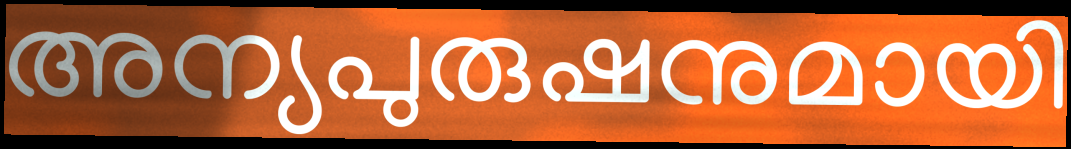
അന്യപുരുഷനുമായി